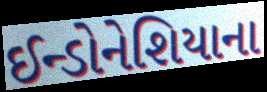
ઈન્ડોનેશિયાના